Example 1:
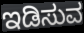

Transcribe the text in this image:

ಇಡಿಸುವ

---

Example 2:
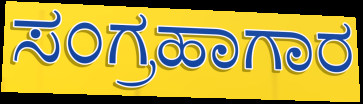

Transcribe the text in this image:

ಸಂಗ್ರಹಾಗಾರ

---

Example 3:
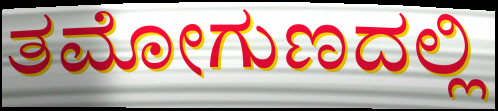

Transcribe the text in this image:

ತಮೋಗುಣದಲ್ಲಿ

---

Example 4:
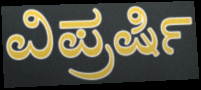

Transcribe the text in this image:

ವಿಪ್ರರ್ಷಿ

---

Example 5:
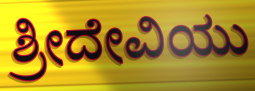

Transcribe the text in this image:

ಶ್ರೀದೇವಿಯು